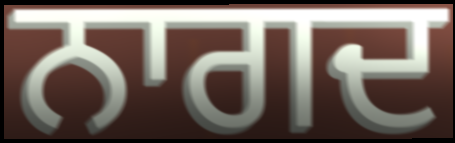
ਨਾਗਦ